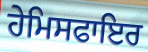
ਹੇਮਿਸਫਾਇਰ